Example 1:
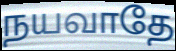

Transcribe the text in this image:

நயவாதே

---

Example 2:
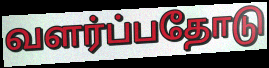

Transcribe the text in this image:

வளர்ப்பதோடு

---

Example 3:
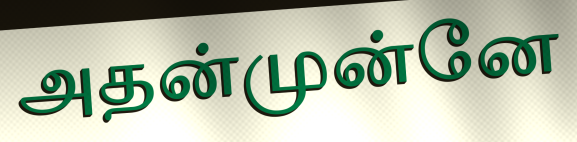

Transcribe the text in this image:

அதன்முன்னே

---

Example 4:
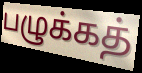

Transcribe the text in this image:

பழுக்கத்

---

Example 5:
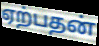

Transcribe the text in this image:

ஏற்பதன்